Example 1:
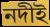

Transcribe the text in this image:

নদীই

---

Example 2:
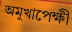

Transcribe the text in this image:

অমুখাপেক্ষী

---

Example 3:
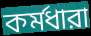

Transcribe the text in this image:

কর্মধারা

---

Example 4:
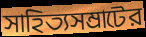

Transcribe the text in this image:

সাহিত্যসম্রাটের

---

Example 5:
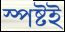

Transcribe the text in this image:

স্পষ্টই